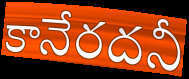
కానేరదనీ